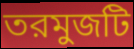
তরমুজটি